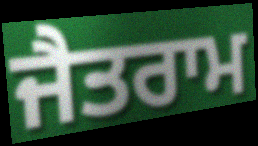
ਜੈਤਰਾਮ